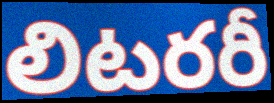
లిటరరీ